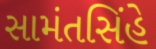
સામંતસિંહે